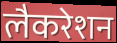
लैकरेशन